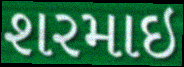
શરમાઇ